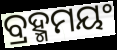
ବ୍ରହ୍ମମୟଂ